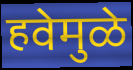
हवेमुळे